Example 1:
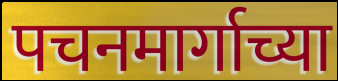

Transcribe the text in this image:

पचनमार्गाच्या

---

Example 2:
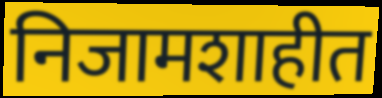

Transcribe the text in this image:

निजामशाहीत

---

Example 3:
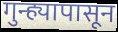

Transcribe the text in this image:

गुन्ह्यापासून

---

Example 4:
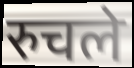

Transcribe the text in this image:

रुचले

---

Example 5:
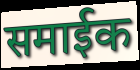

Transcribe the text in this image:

समाईक